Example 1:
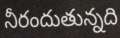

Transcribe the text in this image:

నీరందుతున్నది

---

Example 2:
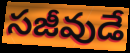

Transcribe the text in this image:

సజీవుడే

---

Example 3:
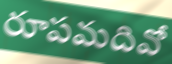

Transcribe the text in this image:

రూపమదివో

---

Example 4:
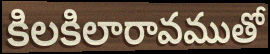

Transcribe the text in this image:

కిలకిలారావముతో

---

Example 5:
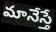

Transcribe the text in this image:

మానేస్తే